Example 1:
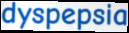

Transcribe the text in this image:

dyspepsia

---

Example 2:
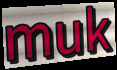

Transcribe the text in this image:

muk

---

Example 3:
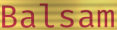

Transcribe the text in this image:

Balsam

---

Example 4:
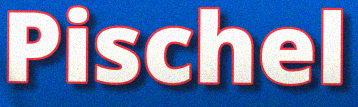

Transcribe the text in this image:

Pischel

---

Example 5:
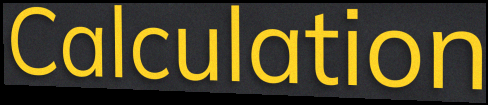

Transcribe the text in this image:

Calculation